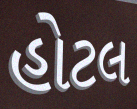
હોટલ